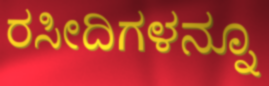
ರಸೀದಿಗಳನ್ನೂ